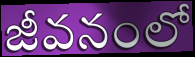
జీవనంలో